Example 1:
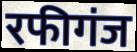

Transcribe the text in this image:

रफीगंज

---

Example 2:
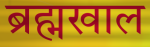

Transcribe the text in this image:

ब्रह्मखाल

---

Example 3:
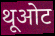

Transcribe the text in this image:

थूओट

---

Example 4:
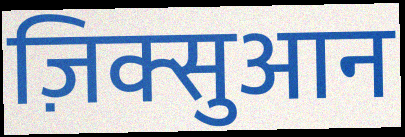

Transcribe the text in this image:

ज़िक्सुआन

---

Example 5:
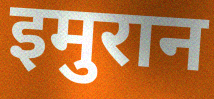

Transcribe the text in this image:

इमुरान